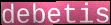
debetis